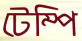
টেম্পি